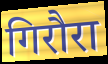
गिरौरा